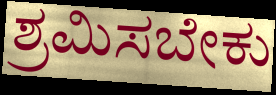
ಶ್ರಮಿಸಬೇಕು